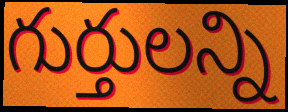
గుర్తులన్ని